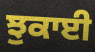
ਝੁਕਾਈ